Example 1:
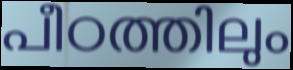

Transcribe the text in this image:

പീഠത്തിലും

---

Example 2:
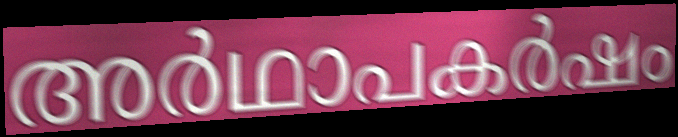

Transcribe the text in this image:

അർഥാപകർഷം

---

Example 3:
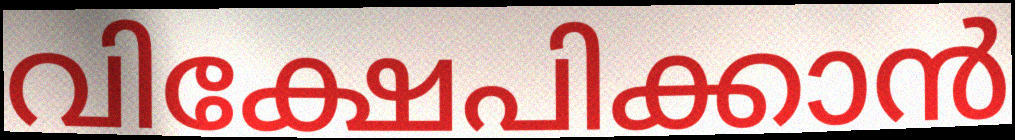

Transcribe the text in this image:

വിക്ഷേപിക്കാൻ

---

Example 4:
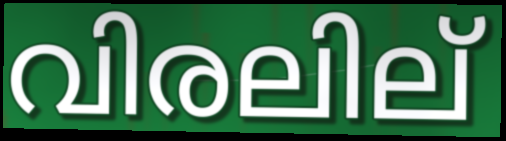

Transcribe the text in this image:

വിരലില്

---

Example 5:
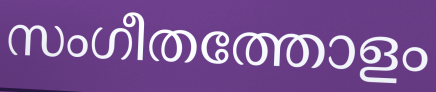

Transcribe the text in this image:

സംഗീതത്തോളം